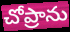
చోప్రాను